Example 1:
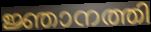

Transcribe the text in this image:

ജ്ഞാനത്തി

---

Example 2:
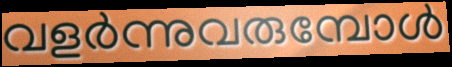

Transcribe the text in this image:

വളർന്നുവരുമ്പോൾ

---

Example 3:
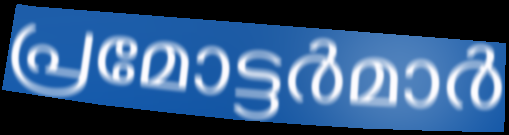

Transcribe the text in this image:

പ്രമോട്ടർമാർ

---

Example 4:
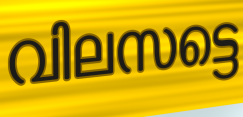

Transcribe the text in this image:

വിലസട്ടെ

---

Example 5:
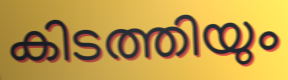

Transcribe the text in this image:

കിടത്തിയും